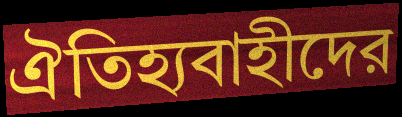
ঐতিহ্যবাহীদের